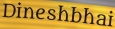
Dineshbhai